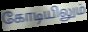
கோடியிலும்